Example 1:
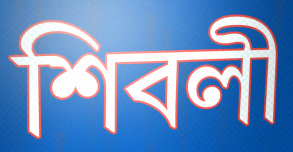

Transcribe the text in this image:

শিবলী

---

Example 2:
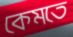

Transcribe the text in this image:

কেমতে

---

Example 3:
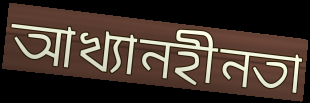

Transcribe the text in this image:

আখ্যানহীনতা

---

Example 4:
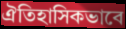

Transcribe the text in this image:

ঐতিহাসিকভাবে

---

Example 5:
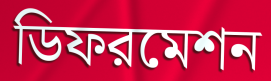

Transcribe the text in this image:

ডিফরমেশন